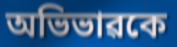
অভিভাৱকে